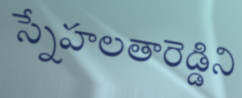
స్నేహలతారెడ్డిని